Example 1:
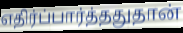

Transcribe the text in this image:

எதிர்ப்பார்த்ததுதான்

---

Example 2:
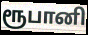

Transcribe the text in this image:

ரூபானி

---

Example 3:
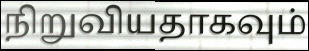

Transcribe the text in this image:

நிறுவியதாகவும்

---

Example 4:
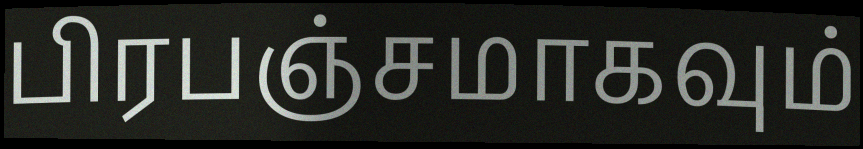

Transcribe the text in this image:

பிரபஞ்சமாகவும்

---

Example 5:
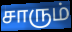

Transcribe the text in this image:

சாரும்